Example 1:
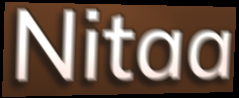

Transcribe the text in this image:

Nitaa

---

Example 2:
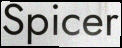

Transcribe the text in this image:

Spicer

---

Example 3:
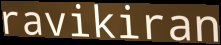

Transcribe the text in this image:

ravikiran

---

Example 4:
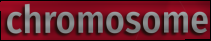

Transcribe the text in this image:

chromosome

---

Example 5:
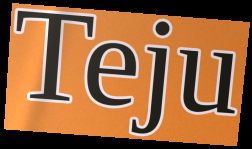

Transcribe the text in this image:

Teju